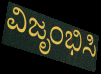
ವಿಜೃಂಭಿಸಿ